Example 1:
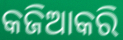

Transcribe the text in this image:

କଜିଆକରି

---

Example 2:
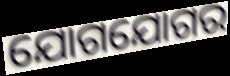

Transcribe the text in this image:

ଯୋଗଯୋଗର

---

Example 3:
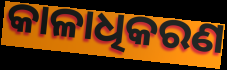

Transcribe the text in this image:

କାଳାଧିକରଣ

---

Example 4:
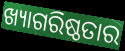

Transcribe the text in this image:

ଖ୍ୟାଗରିଷ୍ଠତାର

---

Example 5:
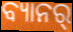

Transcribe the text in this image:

ବ୍ୟାନର୍